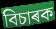
বিচাৰক